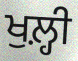
ਖੁਲ਼੍ਹੀ